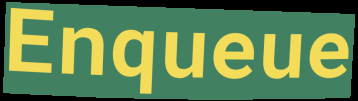
Enqueue